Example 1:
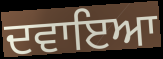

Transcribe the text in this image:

ਦਵਾਇਆ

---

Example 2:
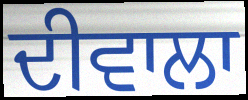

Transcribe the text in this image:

ਦੀਵਾਲਾ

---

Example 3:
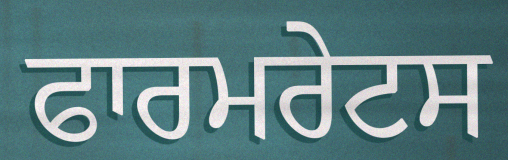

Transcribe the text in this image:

ਫਾਰਮਰੇਟਸ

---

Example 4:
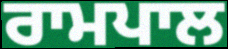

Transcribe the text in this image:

ਰਾਮਪਾਲ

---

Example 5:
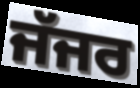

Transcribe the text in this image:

ਜੱਜਰ